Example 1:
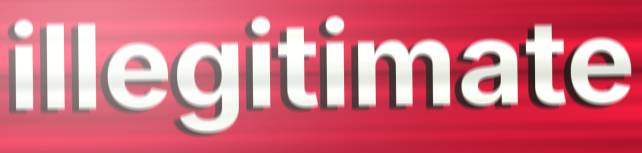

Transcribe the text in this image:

illegitimate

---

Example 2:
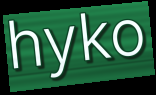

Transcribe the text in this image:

hyko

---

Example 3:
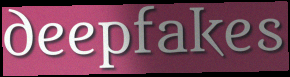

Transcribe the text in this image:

deepfakes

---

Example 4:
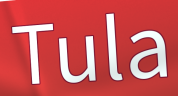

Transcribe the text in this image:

Tula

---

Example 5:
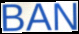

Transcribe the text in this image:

BAN